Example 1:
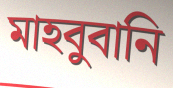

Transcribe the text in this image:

মাহবুবানি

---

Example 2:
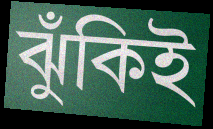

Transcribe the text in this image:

ঝুঁকিই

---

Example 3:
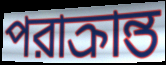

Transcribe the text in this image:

পরাক্রান্ত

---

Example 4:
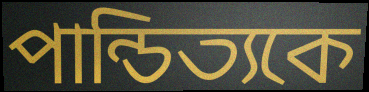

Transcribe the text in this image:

পান্ডিত্যকে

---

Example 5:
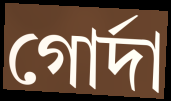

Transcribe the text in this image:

গোর্দা